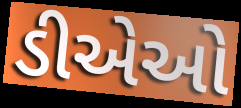
ડીએઓ